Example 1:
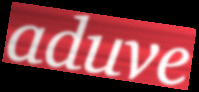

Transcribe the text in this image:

aduve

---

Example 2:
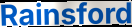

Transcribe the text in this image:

Rainsford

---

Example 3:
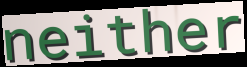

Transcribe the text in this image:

neither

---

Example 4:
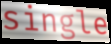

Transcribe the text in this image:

single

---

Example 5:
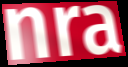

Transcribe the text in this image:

nra